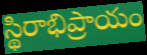
స్థిరాభిప్రాయం